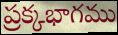
ప్రక్కభాగము